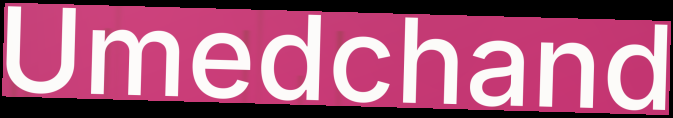
Umedchand